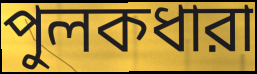
পুলকধারা